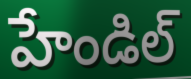
హేండిల్